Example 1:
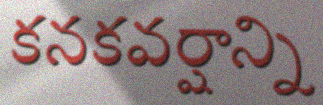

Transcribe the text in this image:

కనకవర్షాన్ని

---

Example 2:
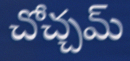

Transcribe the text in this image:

చోచ్చమ్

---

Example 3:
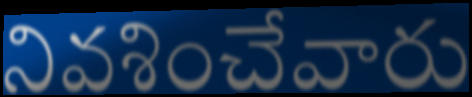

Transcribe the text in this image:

నివశించేవారు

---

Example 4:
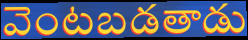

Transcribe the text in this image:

వెంటబడతాడు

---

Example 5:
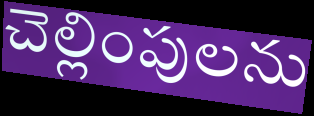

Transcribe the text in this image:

చెల్లింపులను